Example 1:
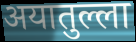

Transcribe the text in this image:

अयातुल्ला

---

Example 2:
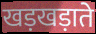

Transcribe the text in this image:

खड़खड़ाते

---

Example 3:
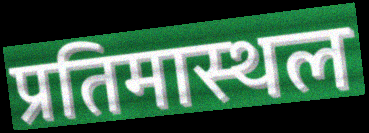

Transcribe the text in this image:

प्रतिमास्थल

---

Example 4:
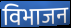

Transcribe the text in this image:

विभाजन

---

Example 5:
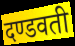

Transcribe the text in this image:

दण्डवती